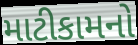
માટીકામનો